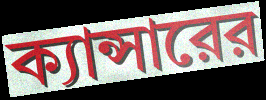
ক্যান্সারের